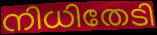
നിധിതേടി